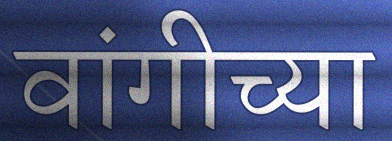
वांगीच्या